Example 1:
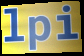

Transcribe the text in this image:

lpi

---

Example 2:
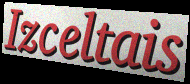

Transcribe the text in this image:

Izceltais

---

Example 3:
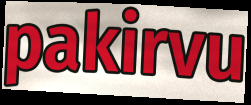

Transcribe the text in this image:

pakirvu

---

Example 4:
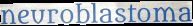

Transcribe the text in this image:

neuroblastoma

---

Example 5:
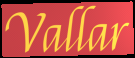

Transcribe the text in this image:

Vallar